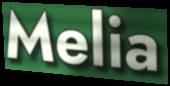
Melia